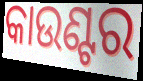
କାଉଣ୍ଟର